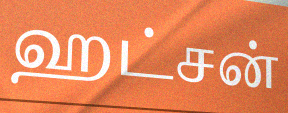
ஹட்சன்